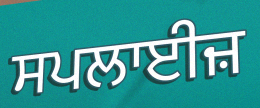
ਸਪਲਾਈਜ਼